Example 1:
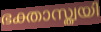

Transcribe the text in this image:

ഭക്താസ്ത്വയി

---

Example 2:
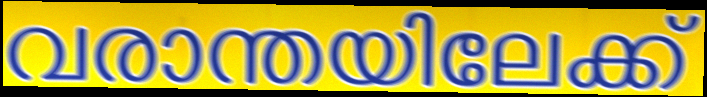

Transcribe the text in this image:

വരാന്തയിലേക്ക്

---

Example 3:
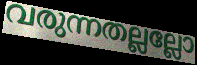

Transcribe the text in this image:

വരുന്നതല്ലല്ലോ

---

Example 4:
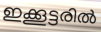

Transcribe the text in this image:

ഇക്കൂട്ടരിൽ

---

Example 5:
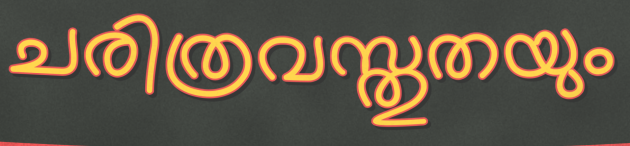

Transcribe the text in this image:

ചരിത്രവസ്തുതയും